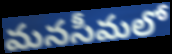
మనసీమలో